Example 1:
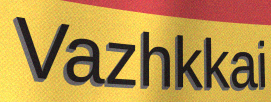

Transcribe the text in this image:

Vazhkkai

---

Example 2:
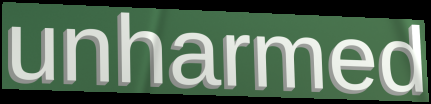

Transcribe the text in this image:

unharmed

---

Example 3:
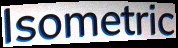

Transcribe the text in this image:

Isometric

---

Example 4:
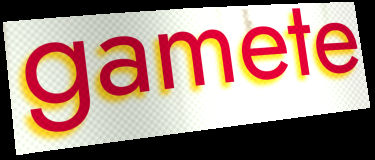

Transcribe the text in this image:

gamete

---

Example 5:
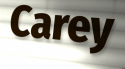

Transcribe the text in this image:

Carey